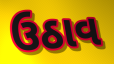
ઉઠાવ